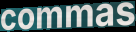
commas